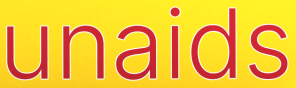
unaids